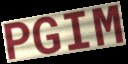
PGIM